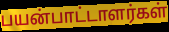
பயன்பாட்டாளர்கள்